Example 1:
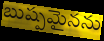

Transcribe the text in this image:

బుష్పమైనను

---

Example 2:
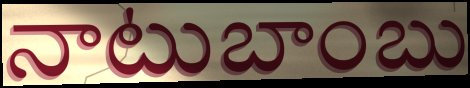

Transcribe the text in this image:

నాటుబాంబు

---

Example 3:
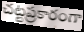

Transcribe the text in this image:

చట్టప్రకారంగా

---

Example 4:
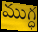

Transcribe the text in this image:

ముగ్ధ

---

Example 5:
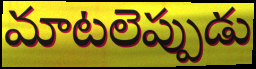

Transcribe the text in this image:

మాటలెప్పుడు